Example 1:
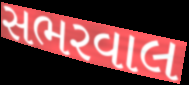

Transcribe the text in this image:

સભરવાલ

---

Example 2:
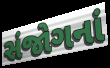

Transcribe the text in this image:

સંજોગનાં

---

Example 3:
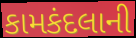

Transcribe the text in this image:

કામકંદલાની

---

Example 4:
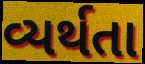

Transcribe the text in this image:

વ્યર્થતા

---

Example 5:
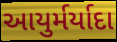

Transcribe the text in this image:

આયુર્મર્યાદા